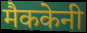
मैककेनी